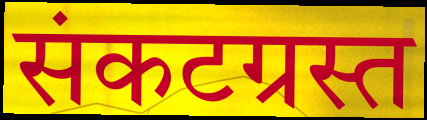
संकटग्रस्त